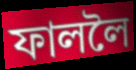
ফাললৈ